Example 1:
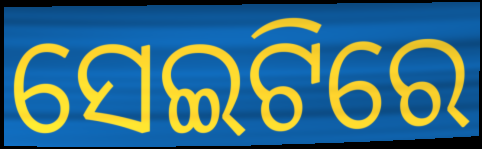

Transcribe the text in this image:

ସେଇଟିରେ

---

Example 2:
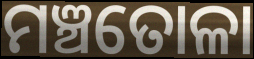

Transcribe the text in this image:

ମଞ୍ଚତୋଳା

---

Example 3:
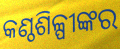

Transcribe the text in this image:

କଣ୍ଠଶିଳ୍ପୀଙ୍କର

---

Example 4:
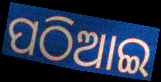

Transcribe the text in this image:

ପଠିଆଇ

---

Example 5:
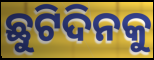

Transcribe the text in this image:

ଛୁଟିଦିନକୁ